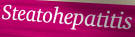
Steatohepatitis